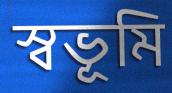
স্বভূমি